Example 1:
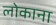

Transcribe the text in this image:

लोकाना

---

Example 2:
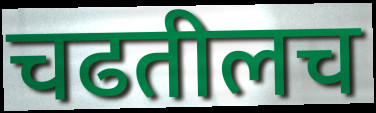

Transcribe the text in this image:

चढतीलच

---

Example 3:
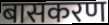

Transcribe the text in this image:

बासकरण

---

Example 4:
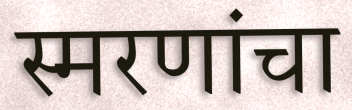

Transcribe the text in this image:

स्मरणांचा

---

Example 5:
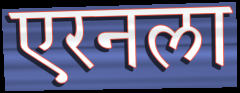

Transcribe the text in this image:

एरनला